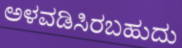
ಅಳವಡಿಸಿರಬಹುದು